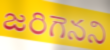
జరిగెనని